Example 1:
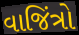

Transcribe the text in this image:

વાજિંત્રો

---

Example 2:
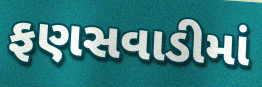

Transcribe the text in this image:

ફણસવાડીમાં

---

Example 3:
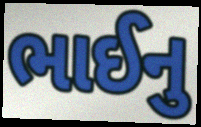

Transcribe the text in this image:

ભાઈનુ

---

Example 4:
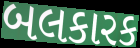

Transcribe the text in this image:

બલકારક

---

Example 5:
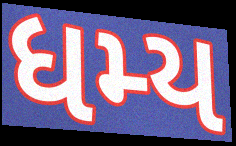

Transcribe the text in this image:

ધમ્ય